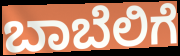
ಬಾಬೆಲಿಗೆ